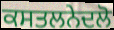
ਕਸਤਲਨੇਦਲੋ